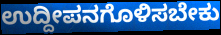
ಉದ್ದೀಪನಗೊಳಿಸಬೇಕು